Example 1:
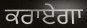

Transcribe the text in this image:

ਕਰਾਏਗਾ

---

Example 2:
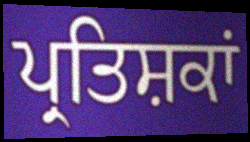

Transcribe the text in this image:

ਪ੍ਰਤਿਸ਼ਕਾਂ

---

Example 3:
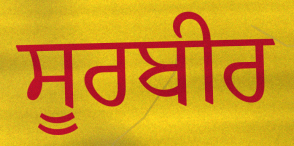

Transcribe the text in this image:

ਸੂਰਬੀਰ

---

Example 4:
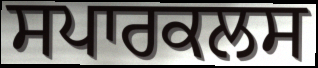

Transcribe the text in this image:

ਸਪਾਰਕਲਸ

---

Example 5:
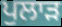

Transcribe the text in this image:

ਪੁਲਾੜ